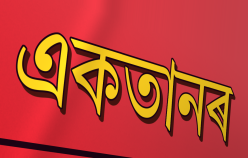
একতানৰ